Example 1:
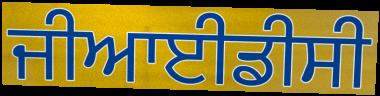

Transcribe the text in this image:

ਜੀਆਈਡੀਸੀ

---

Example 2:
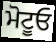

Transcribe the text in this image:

ਮੋਟੂਓ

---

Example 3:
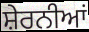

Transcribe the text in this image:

ਸ਼ੇਰਨੀਆਂ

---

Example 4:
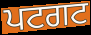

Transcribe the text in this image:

ਪਟਗਟ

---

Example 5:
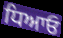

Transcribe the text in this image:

ਧਿਆਓ